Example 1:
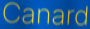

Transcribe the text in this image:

Canard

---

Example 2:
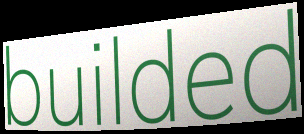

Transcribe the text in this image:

builded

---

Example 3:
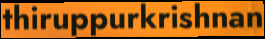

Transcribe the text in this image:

thiruppurkrishnan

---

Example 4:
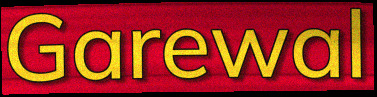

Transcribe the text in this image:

Garewal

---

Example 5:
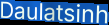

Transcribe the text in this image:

Daulatsinh